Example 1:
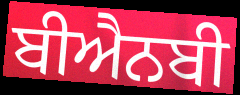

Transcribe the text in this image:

ਬੀਐਨਬੀ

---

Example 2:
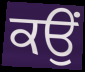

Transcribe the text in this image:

ਕਉਂ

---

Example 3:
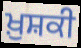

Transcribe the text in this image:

ਖ਼ੁਸ਼ਕੀ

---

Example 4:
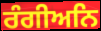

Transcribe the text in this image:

ਰੰਗੀਅਨਿ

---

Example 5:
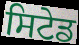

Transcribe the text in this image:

ਸਿਟੇਡ